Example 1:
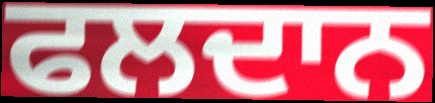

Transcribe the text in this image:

ਫਲਦਾਨ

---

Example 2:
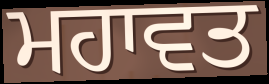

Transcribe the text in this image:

ਮਹਾਵਤ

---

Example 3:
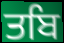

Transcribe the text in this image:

ਤਬਿ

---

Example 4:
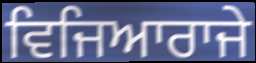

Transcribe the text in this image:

ਵਿਜਿਆਰਾਜੇ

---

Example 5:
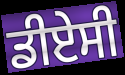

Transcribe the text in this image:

ਡੀਏਸੀ